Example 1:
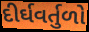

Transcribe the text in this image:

દીર્ઘવર્તુળો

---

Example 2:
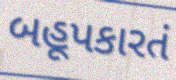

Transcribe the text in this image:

બહૂપકારતં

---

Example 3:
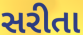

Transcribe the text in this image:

સરીતા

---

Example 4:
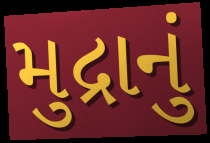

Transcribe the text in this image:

મુદ્રાનું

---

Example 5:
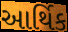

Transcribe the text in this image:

આર્થિક